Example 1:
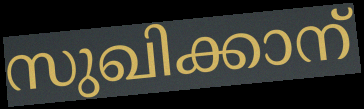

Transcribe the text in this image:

സുഖിക്കാന്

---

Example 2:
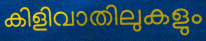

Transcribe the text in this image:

കിളിവാതിലുകളും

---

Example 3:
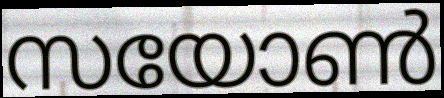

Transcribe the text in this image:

സയോൺ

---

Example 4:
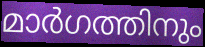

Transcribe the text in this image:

മാർഗത്തിനും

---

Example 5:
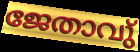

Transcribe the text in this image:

ജേതാവു്